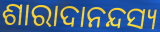
ଶାରାଦାନନ୍ଦସ୍ୟ